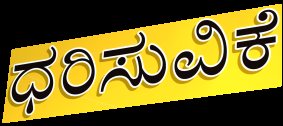
ಧರಿಸುವಿಕೆ